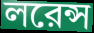
লরেন্স